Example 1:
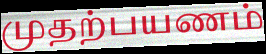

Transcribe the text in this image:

முதற்பயணம்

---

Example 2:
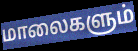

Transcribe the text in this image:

மாலைகளும்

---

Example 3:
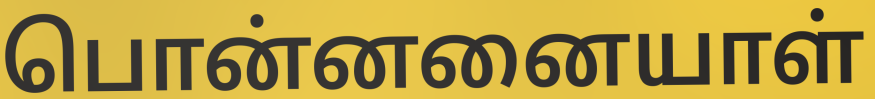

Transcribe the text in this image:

பொன்னனையாள்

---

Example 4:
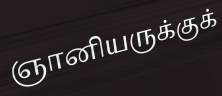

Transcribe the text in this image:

ஞானியருக்குக்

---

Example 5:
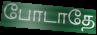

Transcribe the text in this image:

போடாதே